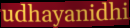
udhayanidhi